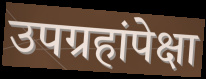
उपग्रहांपेक्षा